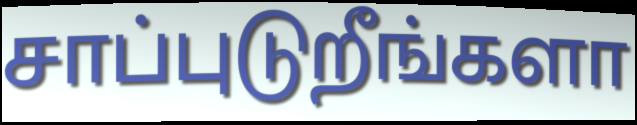
சாப்புடுறீங்களா